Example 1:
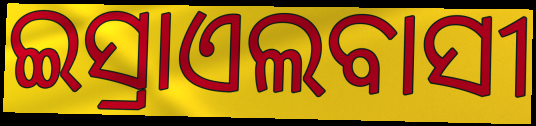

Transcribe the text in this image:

ଇସ୍ରାଏଲବାସୀ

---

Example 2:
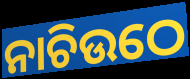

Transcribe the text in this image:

ନାଚିଉଠେ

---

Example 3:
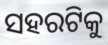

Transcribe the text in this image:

ସହରଟିକୁ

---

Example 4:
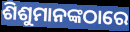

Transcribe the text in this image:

ଶିଶୁମାନଙ୍କଠାରେ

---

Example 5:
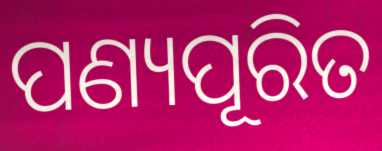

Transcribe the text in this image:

ପଣ୍ୟପୂରିତ